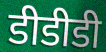
डीडीडी